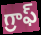
గ్రాఫ్